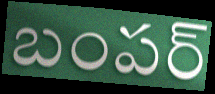
బంపర్